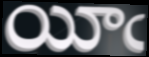
యీఁ